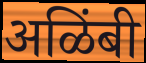
अळिंबी